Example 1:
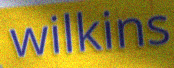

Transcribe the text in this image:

wilkins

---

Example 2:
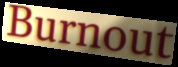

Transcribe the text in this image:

Burnout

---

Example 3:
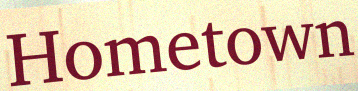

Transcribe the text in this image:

Hometown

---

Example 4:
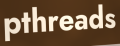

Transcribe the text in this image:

pthreads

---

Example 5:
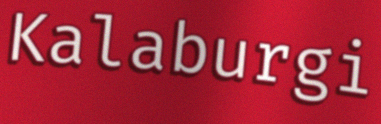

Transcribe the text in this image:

Kalaburgi